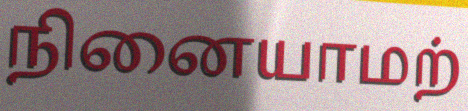
நினையாமற்